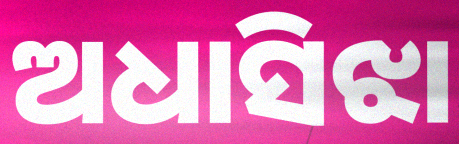
ଅଧାସିଝା